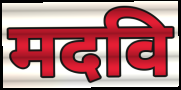
मदवि